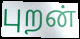
புறன்